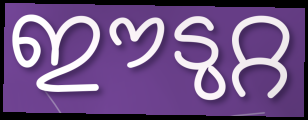
ഈടുറ്റ